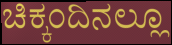
ಚಿಕ್ಕಂದಿನಲ್ಲೂ